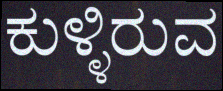
ಕುಳ್ಳಿರುವ